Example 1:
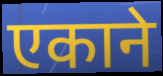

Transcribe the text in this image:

एकाने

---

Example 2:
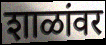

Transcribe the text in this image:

शाळांवर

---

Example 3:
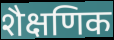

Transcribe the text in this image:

शैक्षणिक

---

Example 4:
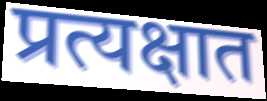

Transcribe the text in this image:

प्रत्यक्षात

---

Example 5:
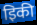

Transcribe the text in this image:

इिकी